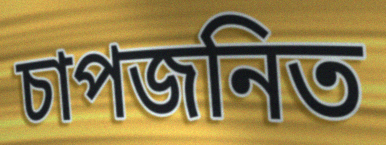
চাপজনিত